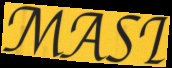
MASI